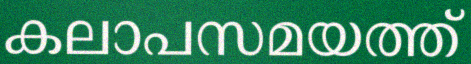
കലാപസമയത്ത്